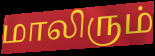
மாலிரும்